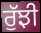
ਰੁੱਝੀ